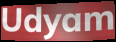
Udyam